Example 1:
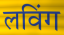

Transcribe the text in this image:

लविंग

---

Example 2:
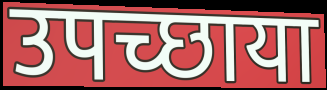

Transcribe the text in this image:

उपच्छाया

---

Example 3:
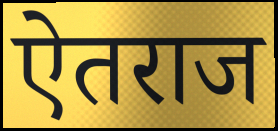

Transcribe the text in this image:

ऐतराज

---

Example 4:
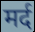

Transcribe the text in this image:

मर्द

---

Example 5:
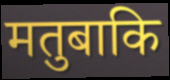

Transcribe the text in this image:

मतुबाकि